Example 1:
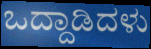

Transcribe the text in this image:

ಒದ್ದಾಡಿದಳು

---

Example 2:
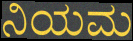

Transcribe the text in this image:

ನಿಯಮ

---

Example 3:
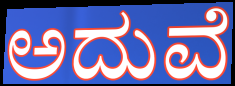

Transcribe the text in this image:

ಅದುವೆ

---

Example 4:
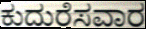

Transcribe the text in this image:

ಕುದುರೆಸವಾರ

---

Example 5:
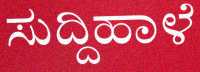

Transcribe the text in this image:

ಸುದ್ದಿಹಾಳೆ